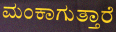
ಮಂಕಾಗುತ್ತಾರೆ